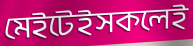
মেইটেইসকলেই